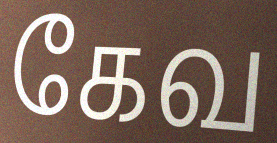
கேவ